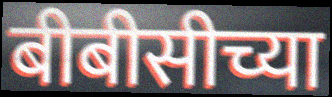
बीबीसीच्या